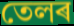
তেলৰ